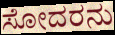
ಸೋದರನು